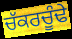
ਚੱਕਰਚੂੰਢੇ